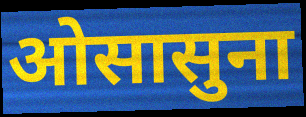
ओसासुना